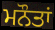
ਮਨੌਤਾਂ